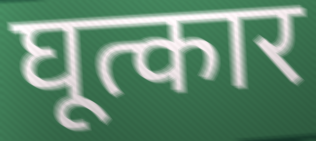
घूत्कार